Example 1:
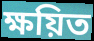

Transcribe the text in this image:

ক্ষয়িত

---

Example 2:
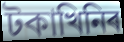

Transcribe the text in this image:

টকাখিনিৰ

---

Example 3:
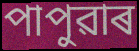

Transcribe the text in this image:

পাপুৱাৰ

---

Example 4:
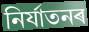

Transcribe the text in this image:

নিৰ্যাতনৰ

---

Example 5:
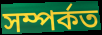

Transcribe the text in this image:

সম্পৰ্কত